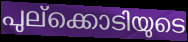
പുല്ക്കൊടിയുടെ